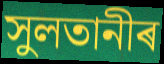
সুলতানীৰ